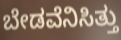
ಬೇಡವೆನಿಸಿತ್ತು